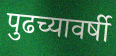
पुढच्यावर्षी